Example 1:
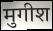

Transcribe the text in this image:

मुगीश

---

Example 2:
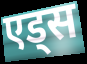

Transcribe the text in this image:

एड्स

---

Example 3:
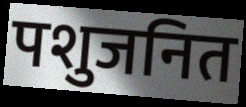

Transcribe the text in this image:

पशुजनित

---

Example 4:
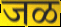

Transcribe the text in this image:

जळ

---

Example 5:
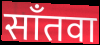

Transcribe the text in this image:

साँतवा